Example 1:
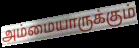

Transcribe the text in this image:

அம்மையாருக்கும்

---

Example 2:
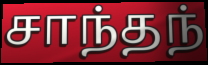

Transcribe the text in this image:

சாந்தந்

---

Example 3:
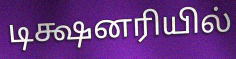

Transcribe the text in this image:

டிக்ஷனரியில்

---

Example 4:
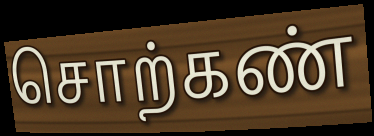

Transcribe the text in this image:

சொற்கண்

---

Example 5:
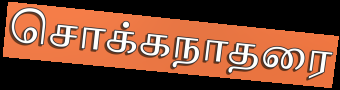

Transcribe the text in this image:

சொக்கநாதரை